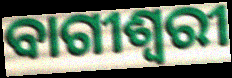
ବାଗୀଶ୍ୱରୀ